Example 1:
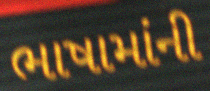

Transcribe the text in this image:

ભાષામાંની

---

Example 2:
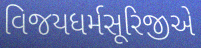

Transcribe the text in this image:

વિજયધર્મસૂરિજીએ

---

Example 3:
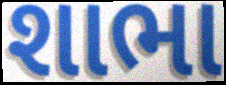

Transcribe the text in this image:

શાભા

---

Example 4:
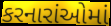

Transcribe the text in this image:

કરનારાંઓમાં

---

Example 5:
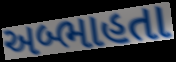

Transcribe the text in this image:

અબ્ભાહતા